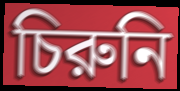
চিরুনি